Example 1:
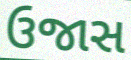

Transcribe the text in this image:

ઉજાસ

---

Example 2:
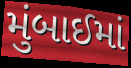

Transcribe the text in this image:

મુંબાઈમાં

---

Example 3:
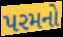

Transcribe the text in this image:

પરમનો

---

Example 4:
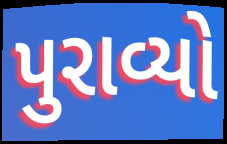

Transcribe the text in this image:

પુરાવ્યો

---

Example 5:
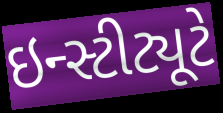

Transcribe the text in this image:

ઇન્સ્ટીટ્યૂટે